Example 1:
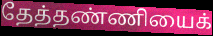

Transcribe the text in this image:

தேத்தண்ணியைக்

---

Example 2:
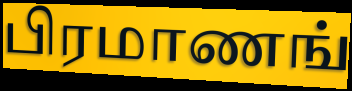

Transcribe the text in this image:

பிரமாணங்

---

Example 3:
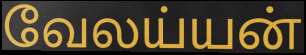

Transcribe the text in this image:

வேலய்யன்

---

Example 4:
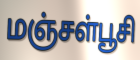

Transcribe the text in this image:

மஞ்சள்பூசி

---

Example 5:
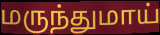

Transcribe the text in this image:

மருந்துமாய்